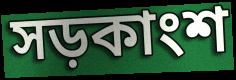
সড়কাংশ